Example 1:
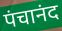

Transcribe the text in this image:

पंचानंद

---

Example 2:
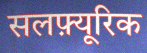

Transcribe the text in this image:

सलफ़्यूरिक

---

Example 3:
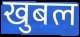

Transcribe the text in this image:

खुबल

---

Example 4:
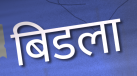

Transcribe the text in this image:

बिडला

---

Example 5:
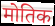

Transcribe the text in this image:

मोतिक